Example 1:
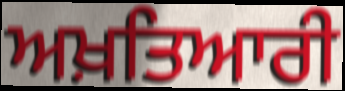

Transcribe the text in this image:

ਅਖ਼ਤਿਆਰੀ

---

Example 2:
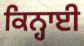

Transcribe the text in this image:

ਕਿਨ੍ਹਾਈ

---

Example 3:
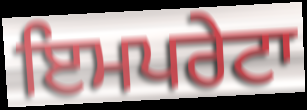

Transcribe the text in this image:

ਇਮਪਰੇਟਾ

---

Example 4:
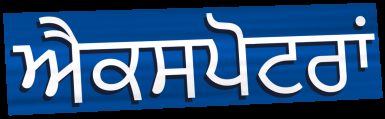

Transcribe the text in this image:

ਐਕਸਪੋਟਰਾਂ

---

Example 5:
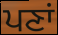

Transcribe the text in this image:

ਪਣਾਂ